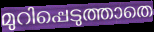
മുറിപ്പെടുത്താതെ